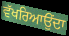
ਵੱਖਰਿਆਉਂਦਾ